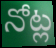
నోట్ల